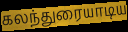
கலந்துரையாடிய